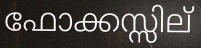
ഫോക്കസ്സില്